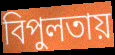
বিপুলতায়